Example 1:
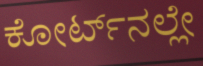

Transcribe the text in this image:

ಕೋರ್ಟ್‌ನಲ್ಲೇ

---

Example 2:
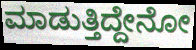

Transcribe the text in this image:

ಮಾಡುತ್ತಿದ್ದೇನೋ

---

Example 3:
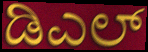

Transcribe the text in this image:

ಡಿಎಲ್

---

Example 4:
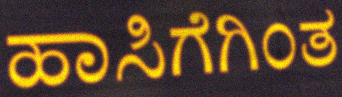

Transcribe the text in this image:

ಹಾಸಿಗೆಗಿಂತ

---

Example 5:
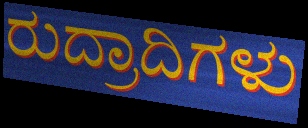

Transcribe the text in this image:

ರುದ್ರಾದಿಗಳು